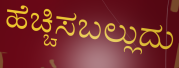
ಹೆಚ್ಚಿಸಬಲ್ಲುದು